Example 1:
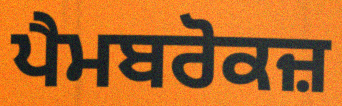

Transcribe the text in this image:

ਪੈਮਬਰੋਕਜ਼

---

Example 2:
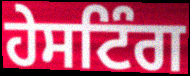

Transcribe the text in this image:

ਹੇਸਟਿੰਗ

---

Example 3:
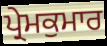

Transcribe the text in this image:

ਪ੍ਰੇਮਕੁਮਾਰ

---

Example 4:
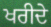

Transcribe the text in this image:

ਖਰੀਦੇ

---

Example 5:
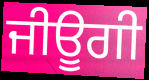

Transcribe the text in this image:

ਜੀਊਗੀ